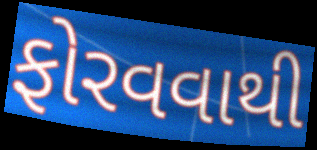
ફોરવવાથી